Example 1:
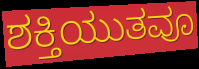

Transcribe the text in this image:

ಶಕ್ತಿಯುತವೂ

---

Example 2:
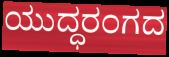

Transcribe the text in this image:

ಯುದ್ಧರಂಗದ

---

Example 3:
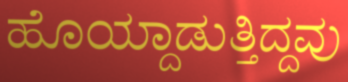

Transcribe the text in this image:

ಹೊಯ್ದಾಡುತ್ತಿದ್ದವು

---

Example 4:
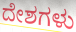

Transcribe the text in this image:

ದೇಶಗಳು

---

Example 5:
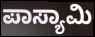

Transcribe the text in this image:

ಪಾಸ್ಯಾಮಿ